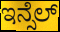
ಇನ್ಸೆಲ್